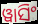
ୱାସିଂ